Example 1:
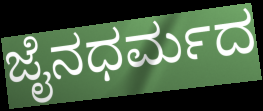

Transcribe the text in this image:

ಜೈನಧರ್ಮದ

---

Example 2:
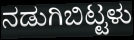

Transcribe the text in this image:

ನಡುಗಿಬಿಟ್ಟಳು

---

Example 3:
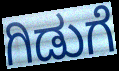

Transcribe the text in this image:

ಗಿಡುಗೆ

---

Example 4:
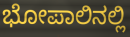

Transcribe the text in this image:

ಭೋಪಾಲಿನಲ್ಲಿ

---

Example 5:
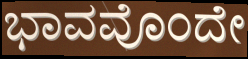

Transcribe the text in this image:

ಭಾವವೊಂದೇ